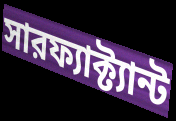
সারফ্যাক্ট্যান্ট